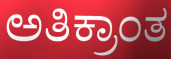
ಅತಿಕ್ರಾಂತ